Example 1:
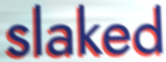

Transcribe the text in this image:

slaked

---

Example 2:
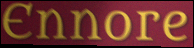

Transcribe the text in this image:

Ennore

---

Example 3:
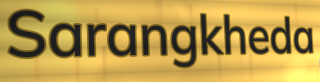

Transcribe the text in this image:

Sarangkheda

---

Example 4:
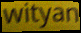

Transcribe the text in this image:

wityan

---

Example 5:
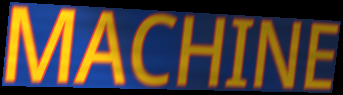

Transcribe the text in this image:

MACHINE